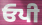
ਓਪੀ